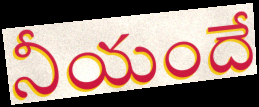
నీయందే